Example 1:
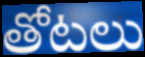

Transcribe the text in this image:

తోటలు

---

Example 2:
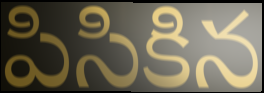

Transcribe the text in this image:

పిసికిన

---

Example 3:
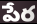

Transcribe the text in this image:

పేర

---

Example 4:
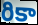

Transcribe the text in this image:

రికా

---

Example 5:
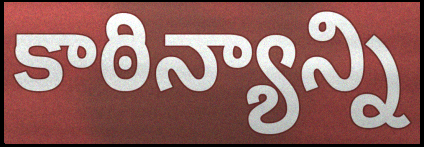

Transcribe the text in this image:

కాఠిన్యాన్ని